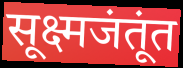
सूक्ष्मजंतूंत